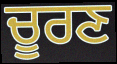
ਚੂਰਣ